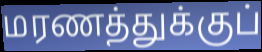
மரணத்துக்குப்